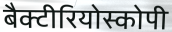
बैक्टीरियोस्कोपी